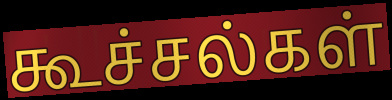
கூச்சல்கள்